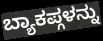
ಬ್ಯಾಕಪ್ಗಳನ್ನು